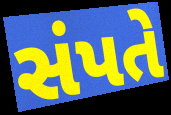
સંપતે